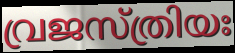
വ്രജസ്ത്രിയഃ